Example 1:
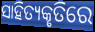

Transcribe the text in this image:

ସାହିତ୍ୟକୃତିରେ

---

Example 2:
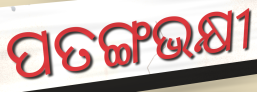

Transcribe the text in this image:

ପତଙ୍ଗଭକ୍ଷୀ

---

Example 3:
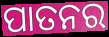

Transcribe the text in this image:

ପାତନର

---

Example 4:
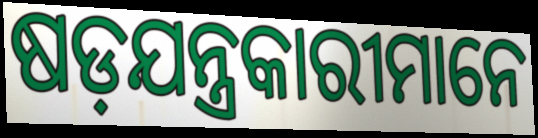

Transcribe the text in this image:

ଷଡ଼ଯନ୍ତ୍ରକାରୀମାନେ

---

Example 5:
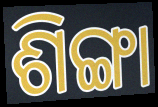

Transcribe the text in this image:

ଶିଙ୍ଗା